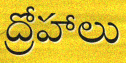
ద్రోహాలు